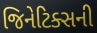
જિનેટિક્સની